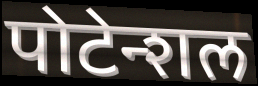
पोटेन्शल